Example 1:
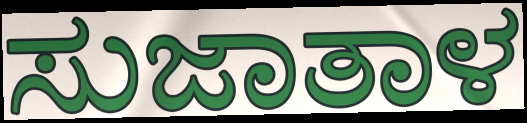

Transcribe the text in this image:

ಸುಜಾತಾಳ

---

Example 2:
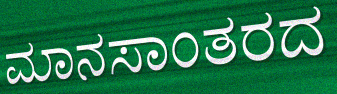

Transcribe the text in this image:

ಮಾನಸಾಂತರದ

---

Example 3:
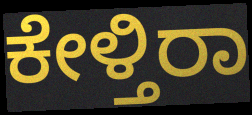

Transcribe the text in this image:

ಕೇಳ್ತಿರಾ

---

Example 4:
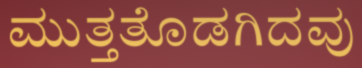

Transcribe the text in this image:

ಮುತ್ತತೊಡಗಿದವು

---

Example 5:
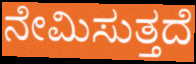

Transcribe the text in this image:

ನೇಮಿಸುತ್ತದೆ